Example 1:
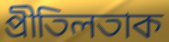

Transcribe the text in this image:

প্ৰীতিলতাক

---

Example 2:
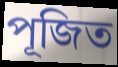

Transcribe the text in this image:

পূজিত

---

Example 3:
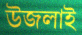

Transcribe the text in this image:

উজলাই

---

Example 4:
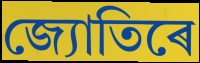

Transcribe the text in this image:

জ্যোতিৰে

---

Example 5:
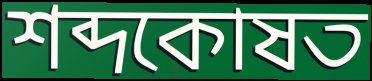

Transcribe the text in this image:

শব্দকোষত